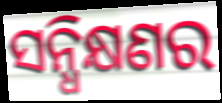
ସନ୍ଧିକ୍ଷଣର